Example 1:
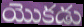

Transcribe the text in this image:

యొకడు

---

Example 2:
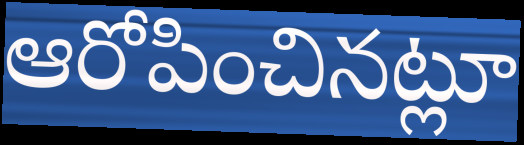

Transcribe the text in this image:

ఆరోపించినట్లూ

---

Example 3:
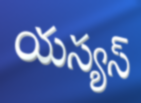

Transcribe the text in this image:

యస్యస్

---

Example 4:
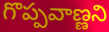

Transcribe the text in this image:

గొప్పవాణ్ణని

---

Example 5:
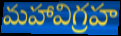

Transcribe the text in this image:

మహావిగ్రహ